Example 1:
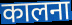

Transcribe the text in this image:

कालना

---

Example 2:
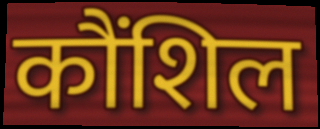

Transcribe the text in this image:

कौंशिल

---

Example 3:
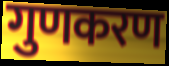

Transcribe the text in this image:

गुणकरण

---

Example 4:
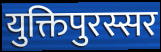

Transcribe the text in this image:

युक्तिपुरस्सर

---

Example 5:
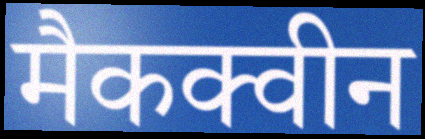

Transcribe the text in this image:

मैकक्वीन